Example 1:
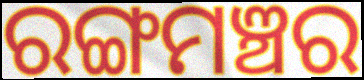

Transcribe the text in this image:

ରଙ୍ଗମଞ୍ଚର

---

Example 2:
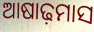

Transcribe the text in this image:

ଆଷାଢ଼ମାସ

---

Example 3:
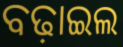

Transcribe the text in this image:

ବଢ଼ାଇଲ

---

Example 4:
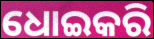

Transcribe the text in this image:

ଧୋଇକରି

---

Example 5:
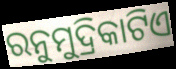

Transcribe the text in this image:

ରନୁମୁଦ୍ରିକାଟିଏ